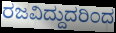
ರಜವಿದ್ದುದರಿಂದ